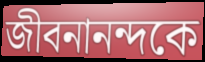
জীবনানন্দকে